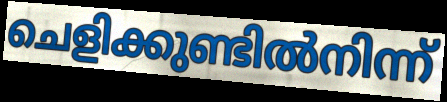
ചെളിക്കുണ്ടിൽനിന്ന്